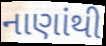
નાણાંથી